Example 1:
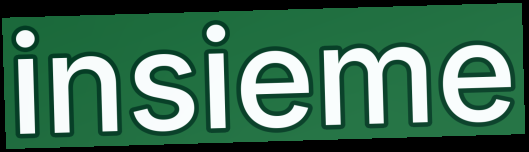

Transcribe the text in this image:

insieme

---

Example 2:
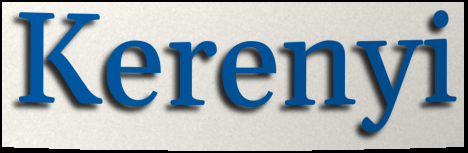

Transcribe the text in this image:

Kerenyi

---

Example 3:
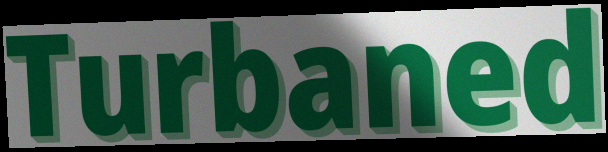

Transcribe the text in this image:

Turbaned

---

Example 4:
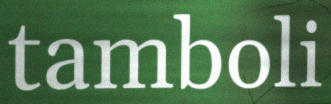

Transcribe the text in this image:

tamboli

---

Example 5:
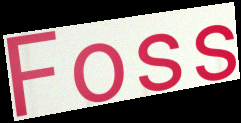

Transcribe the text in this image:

Foss